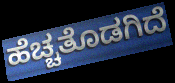
ಹೆಚ್ಚತೊಡಗಿದೆ